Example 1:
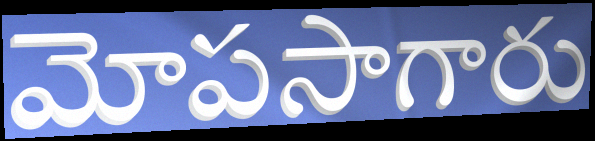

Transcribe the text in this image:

మోపసాగారు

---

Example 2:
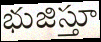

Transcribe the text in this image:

భుజిస్తూ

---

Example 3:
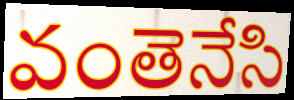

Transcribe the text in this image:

వంతెనేసి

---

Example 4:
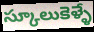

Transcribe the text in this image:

స్కూలుకెళ్ళే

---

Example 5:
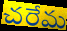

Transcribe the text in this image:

చరేమ